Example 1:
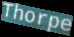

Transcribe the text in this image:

Thorpe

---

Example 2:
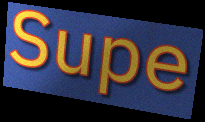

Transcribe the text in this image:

Supe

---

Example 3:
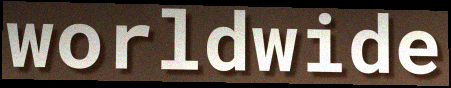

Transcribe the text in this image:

worldwide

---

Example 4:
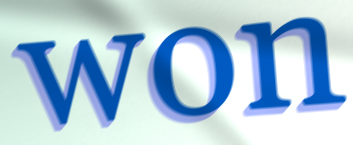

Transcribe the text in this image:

won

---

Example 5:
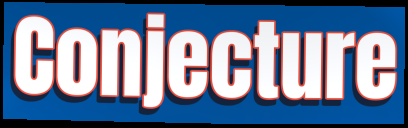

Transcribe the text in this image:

Conjecture